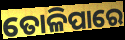
ତୋଳିପାରେ